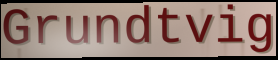
Grundtvig